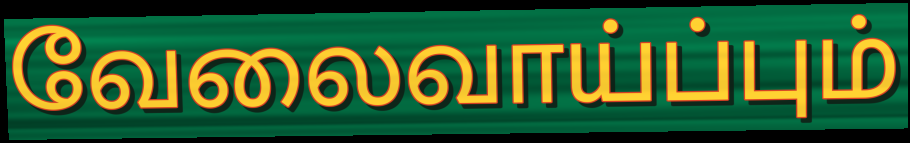
வேலைவாய்ப்பும்